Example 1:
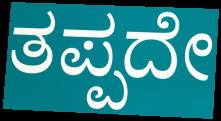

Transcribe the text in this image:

ತಪ್ಪದೇ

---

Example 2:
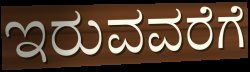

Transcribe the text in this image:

ಇರುವವರೆಗೆ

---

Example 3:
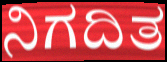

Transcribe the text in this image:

ನಿಗದಿತ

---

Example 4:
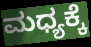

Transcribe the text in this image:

ಮಧ್ಯಕ್ಕೆ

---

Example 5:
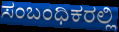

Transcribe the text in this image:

ಸಂಬಂಧಿಕರಲ್ಲಿ